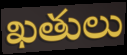
ఖతులు